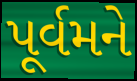
પૂર્વમને